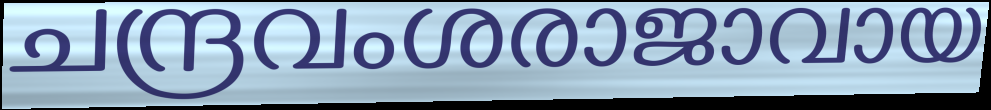
ചന്ദ്രവംശരാജാവായ